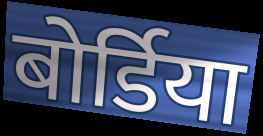
बोर्डिया